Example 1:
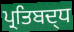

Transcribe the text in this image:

ਪ੍ਰਤਿਬਦ੍ਧ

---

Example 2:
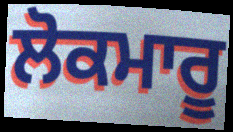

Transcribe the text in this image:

ਲੋਕਮਾਰੂ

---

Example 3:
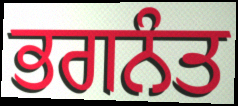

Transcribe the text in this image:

ਭਗਨੰਤ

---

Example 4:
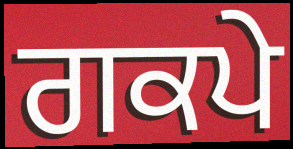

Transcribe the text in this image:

ਗਕਪੇ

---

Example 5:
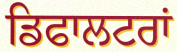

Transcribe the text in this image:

ਡਿਫਾਲਟਰਾਂ